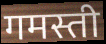
गमस्ती